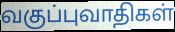
வகுப்புவாதிகள்